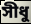
সীধু